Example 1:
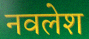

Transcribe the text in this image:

नवलेश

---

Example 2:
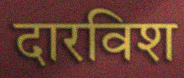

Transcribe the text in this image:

दारविश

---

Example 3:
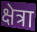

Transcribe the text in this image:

क्षेत्रा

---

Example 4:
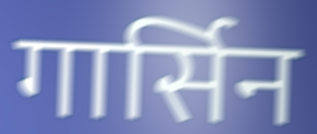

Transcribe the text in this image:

गार्सिन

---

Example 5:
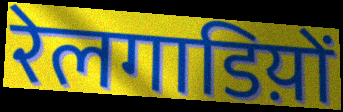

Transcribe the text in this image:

रेलगाडिय़ों